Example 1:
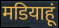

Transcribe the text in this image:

मडियाहूं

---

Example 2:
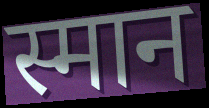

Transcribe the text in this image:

स्मान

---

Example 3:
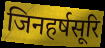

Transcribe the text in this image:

जिनहर्षसूरि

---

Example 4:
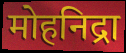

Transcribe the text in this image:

मोहनिद्रा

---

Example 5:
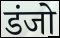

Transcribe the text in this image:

डंजो